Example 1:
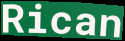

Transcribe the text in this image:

Rican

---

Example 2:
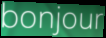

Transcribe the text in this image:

bonjour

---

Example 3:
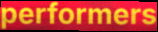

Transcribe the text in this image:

performers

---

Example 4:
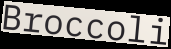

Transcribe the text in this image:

Broccoli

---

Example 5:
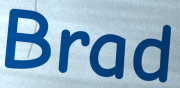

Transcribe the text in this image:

Brad